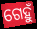
ଗେହୁଁ